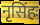
नृसिंहः